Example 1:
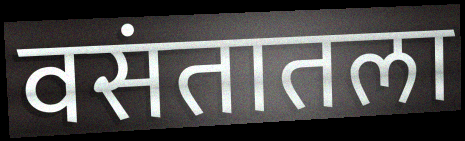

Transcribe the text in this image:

वसंतातला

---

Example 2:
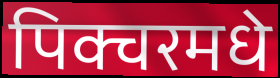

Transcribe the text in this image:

पिक्चरमधे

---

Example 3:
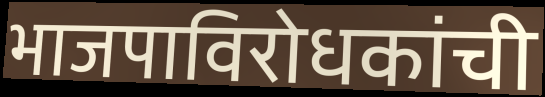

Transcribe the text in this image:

भाजपाविरोधकांची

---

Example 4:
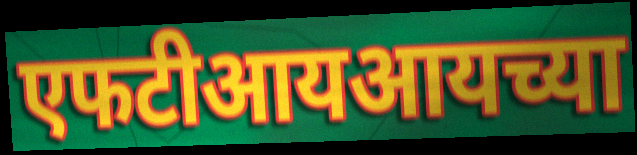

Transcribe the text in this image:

एफटीआयआयच्या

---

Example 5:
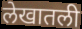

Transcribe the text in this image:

लेखातली